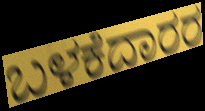
ಬಳಕೆದಾರರ